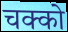
चक्को